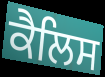
ਕੈਲਿਸ